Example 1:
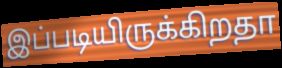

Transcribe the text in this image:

இப்படியிருக்கிறதா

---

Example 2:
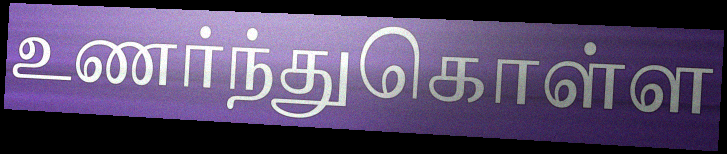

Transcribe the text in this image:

உணர்ந்துகொள்ள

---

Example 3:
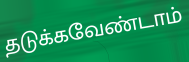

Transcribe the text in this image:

தடுக்கவேண்டாம்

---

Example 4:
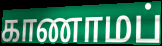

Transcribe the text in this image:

காணாமப்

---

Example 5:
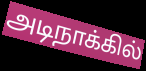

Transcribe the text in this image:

அடிநாக்கில்